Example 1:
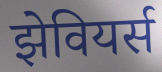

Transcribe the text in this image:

झेवियर्स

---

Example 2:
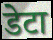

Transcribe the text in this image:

डेटा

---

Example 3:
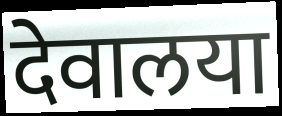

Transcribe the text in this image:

देवालया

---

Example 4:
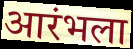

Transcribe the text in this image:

आरंभला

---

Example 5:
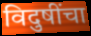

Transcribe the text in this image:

विदुषींचा